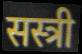
सस्त्री